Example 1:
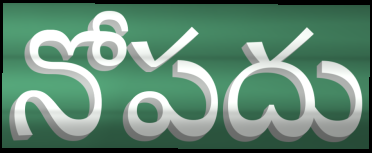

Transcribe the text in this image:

నోపదు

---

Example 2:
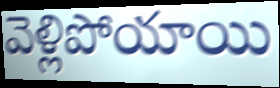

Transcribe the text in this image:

వెళ్లిపోయాయి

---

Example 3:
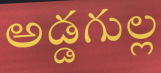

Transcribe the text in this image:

అడ్డగుల్ల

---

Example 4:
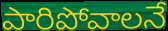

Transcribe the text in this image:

పారిపోవాలనే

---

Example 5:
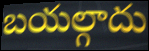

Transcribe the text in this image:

బయల్గాదు